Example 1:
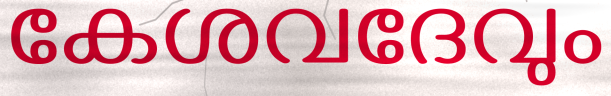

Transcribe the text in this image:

കേശവദേവും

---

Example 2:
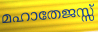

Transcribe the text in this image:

മഹാതേജസ്സ്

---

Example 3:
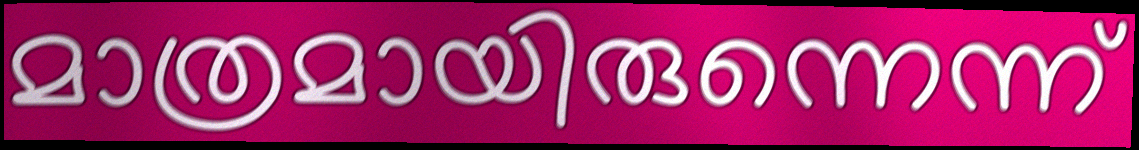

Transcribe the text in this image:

മാത്രമായിരുന്നെന്ന്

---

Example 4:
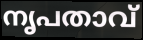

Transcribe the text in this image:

നൃപതാവ്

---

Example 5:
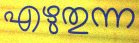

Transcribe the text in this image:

എഴുതുന്ന